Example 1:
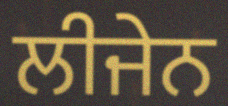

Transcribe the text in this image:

ਲੀਜੇਨ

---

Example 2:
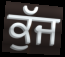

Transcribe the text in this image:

ਕੁੱਜ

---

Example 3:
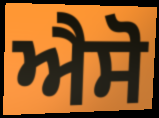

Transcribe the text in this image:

ਐਸੋ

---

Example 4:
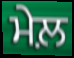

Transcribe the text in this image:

ਮੇਲ਼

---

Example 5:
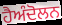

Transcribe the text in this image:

ਹੈਅੰਦੋਲਨ